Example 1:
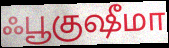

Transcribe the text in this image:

ஃபூகுஷீமா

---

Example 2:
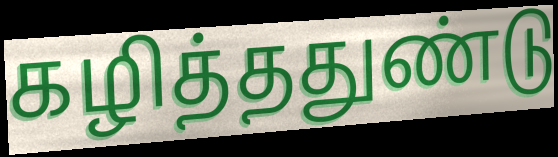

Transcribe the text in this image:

கழித்ததுண்டு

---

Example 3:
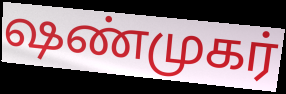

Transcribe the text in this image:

ஷண்முகர்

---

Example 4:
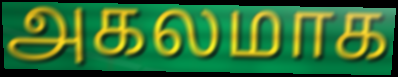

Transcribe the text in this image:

அகலமாக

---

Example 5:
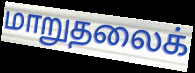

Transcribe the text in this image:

மாறுதலைக்